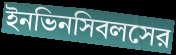
ইনভিনসিবলসের